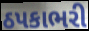
ઠપકાભરી